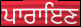
ਪਾਰਾਇਣ